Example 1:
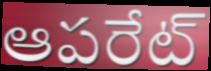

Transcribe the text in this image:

ఆపరేట్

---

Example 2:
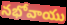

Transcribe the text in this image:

నభోవాయు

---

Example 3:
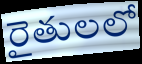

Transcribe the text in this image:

రైతులలో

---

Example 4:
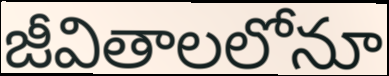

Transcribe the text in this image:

జీవితాలలోనూ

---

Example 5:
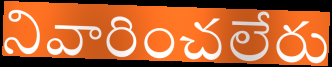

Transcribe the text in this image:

నివారించలేరు